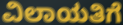
ವಿಲಾಯತಿಗೆ